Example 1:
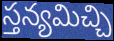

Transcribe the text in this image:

స్తన్యమిచ్చి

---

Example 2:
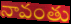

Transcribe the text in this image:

నావంతు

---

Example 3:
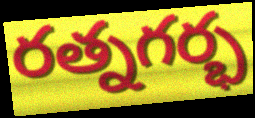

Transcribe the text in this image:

రత్నగర్భ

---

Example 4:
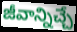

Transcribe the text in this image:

జీవాన్నిచ్చే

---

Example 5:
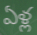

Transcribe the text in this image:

ఏళ్ల